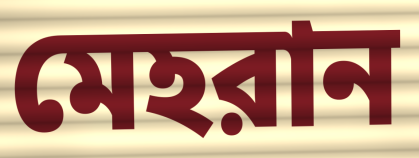
মেহরান